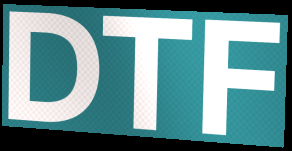
DTF